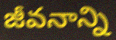
జీవనాన్ని